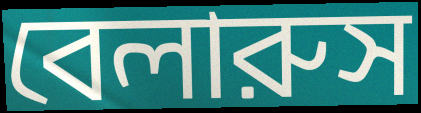
বেলারুস